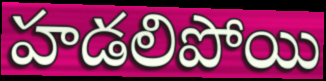
హడలిపోయి